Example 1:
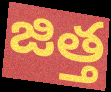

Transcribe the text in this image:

జిత్త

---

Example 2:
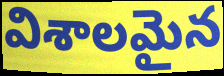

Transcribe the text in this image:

విశాలమైన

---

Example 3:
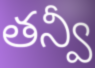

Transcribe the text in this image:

తన్వీ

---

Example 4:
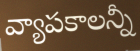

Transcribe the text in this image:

వ్యాపకాలన్నీ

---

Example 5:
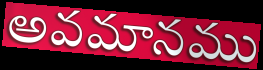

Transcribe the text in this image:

అవమానము